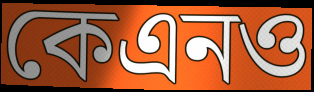
কেএনও